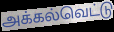
அக்கல்வெட்டு